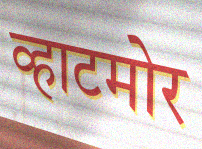
व्हाटमोर